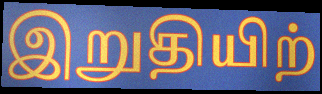
இறுதியிற்